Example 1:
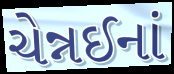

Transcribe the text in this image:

ચેન્નઈનાં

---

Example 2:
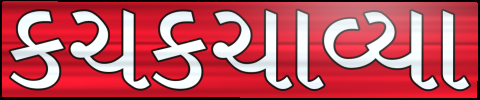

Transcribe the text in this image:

કચકચાવ્યા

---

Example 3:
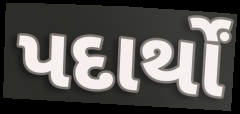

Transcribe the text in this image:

પદાર્થોં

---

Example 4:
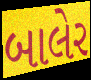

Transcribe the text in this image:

બાલેર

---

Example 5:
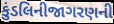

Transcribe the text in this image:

કુંડલિનીજાગરણની